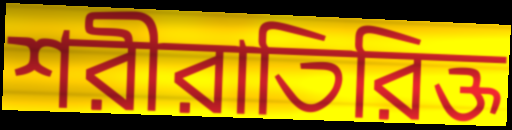
শরীরাতিরিক্ত